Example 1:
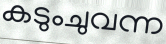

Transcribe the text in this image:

കടുംചുവന്ന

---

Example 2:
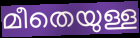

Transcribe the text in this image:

മീതെയുള്ള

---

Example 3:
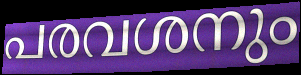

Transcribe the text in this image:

പരവശനും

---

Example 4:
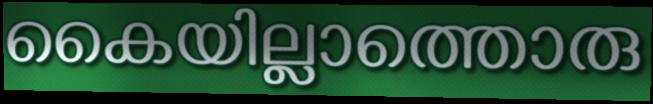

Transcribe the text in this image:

കൈയില്ലാത്തൊരു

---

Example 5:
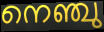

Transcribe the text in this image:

നെഞ്ചു